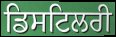
ਡਿਸਟਿਲਰੀ